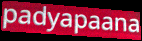
padyapaana